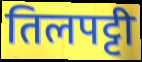
तिलपट्टी